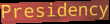
Presidency